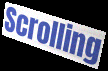
Scrolling